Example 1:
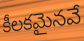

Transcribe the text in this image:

కీలకమైనవే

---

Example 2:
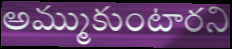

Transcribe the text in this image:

అమ్ముకుంటారని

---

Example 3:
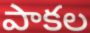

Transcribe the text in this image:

పాకల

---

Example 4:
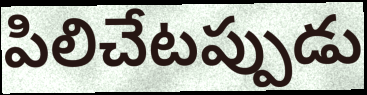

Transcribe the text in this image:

పిలిచేటప్పుడు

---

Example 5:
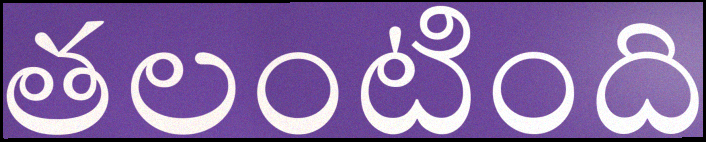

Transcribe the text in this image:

తలంటింది